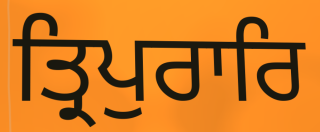
ਤ੍ਰਿਪੁਰਾਰਿ